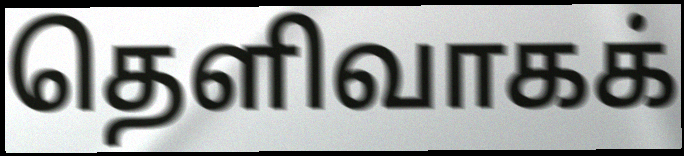
தெளிவாகக்